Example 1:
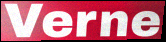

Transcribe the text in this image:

Verne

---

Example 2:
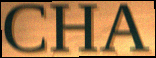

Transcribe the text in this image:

CHA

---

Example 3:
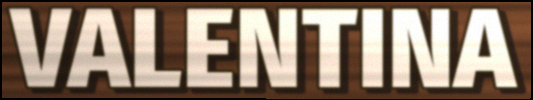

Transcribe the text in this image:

VALENTINA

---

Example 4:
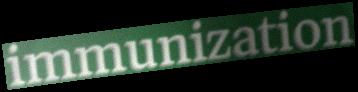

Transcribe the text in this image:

immunization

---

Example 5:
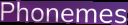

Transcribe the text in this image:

Phonemes